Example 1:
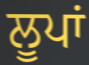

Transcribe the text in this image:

ਲੂਪਾਂ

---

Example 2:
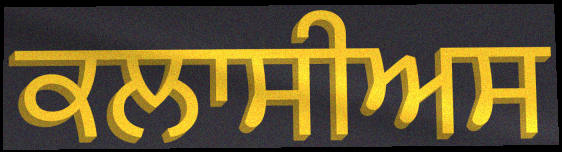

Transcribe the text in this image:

ਕਲਾਸੀਅਸ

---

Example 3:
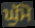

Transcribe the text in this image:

ਘੁੱਮੋ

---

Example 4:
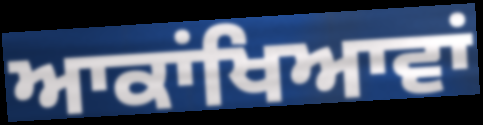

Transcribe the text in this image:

ਆਕਾਂਖਿਆਵਾਂ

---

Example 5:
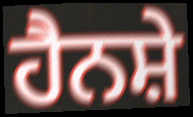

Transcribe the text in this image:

ਹੈਨਸ਼ੇ